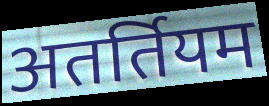
अतर्तियम